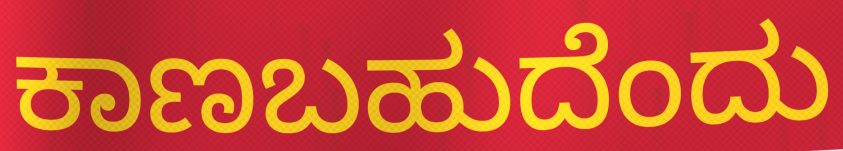
ಕಾಣಬಹುದೆಂದು